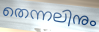
തെന്നലിനും